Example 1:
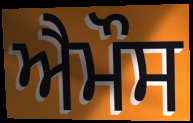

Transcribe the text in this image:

ਐਮੌਸ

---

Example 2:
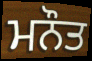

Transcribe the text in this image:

ਮਨੌਤ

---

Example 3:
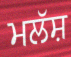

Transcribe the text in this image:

ਮਲੱਸ਼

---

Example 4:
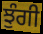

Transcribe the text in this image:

ਝੁੰਗੀ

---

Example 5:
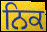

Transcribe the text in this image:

ਨਿਕ